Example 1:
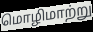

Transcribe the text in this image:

மொழிமாற்று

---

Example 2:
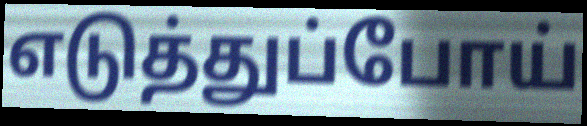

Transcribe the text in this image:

எடுத்துப்போய்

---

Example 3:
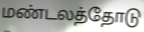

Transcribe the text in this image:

மண்டலத்தோடு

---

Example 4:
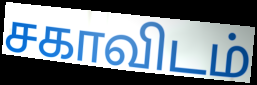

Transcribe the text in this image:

சகாவிடம்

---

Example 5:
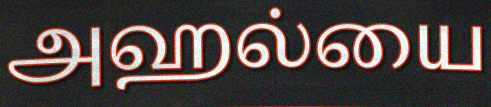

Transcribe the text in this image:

அஹல்யை